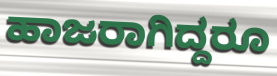
ಹಾಜರಾಗಿದ್ದರೂ